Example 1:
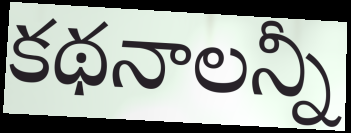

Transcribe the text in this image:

కథనాలన్నీ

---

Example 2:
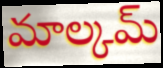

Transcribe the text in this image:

మాల్కమ్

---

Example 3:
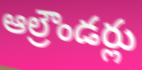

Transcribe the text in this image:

ఆల్రౌండర్లు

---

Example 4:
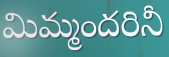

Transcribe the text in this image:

మిమ్మందరినీ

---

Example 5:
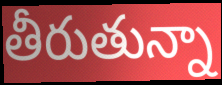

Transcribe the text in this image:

తీరుతున్నా